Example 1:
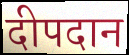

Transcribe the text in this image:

दीपदान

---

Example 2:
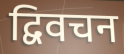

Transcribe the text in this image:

द्विवचन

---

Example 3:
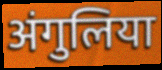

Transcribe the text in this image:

अंगुलिया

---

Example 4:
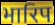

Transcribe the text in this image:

भारिप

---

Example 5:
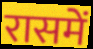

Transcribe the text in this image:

रासमें